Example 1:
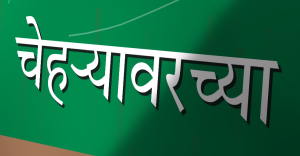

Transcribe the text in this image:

चेहर्‍यावरच्या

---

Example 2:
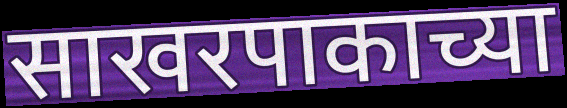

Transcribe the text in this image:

साखरपाकाच्या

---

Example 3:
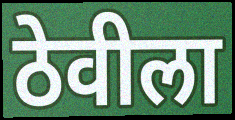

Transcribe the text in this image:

ठेवीला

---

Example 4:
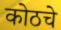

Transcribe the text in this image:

कोठचे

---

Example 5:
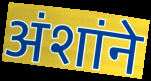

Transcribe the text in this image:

अंशांने